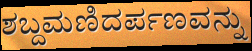
ಶಬ್ದಮಣಿದರ್ಪಣವನ್ನು